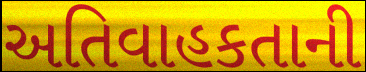
અતિવાહકતાની